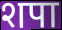
शपा